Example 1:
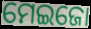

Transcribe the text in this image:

ମେଇଜୋ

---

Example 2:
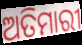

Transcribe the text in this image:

ଅତିମାରୀ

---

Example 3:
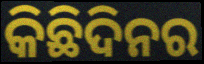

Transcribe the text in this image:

କିଛିଦିନର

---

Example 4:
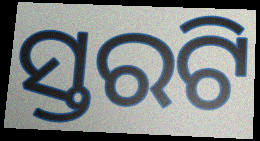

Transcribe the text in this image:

ସ୍ତରଟି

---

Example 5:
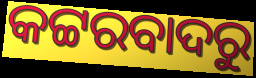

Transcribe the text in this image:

କଟ୍ଟରବାଦରୁ